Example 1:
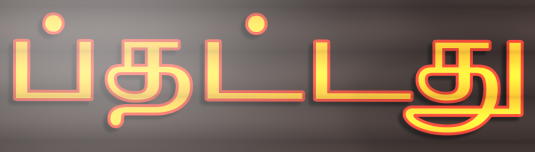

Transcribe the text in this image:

ப்தட்டது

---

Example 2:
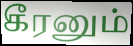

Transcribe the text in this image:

கீரனும்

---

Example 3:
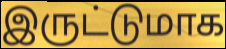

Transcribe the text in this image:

இருட்டுமாக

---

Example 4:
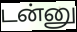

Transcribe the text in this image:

டன்னு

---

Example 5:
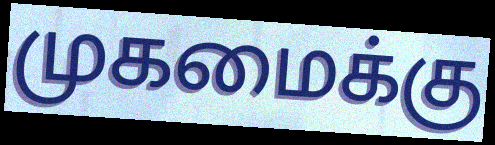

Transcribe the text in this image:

முகமைக்கு